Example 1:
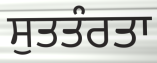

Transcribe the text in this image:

ਸੁਤਤੰਰਤਾ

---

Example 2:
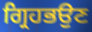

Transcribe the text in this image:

ਗ੍ਰਿਹਭਉਣ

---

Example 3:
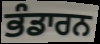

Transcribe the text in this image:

ਭੰਡਾਰਨ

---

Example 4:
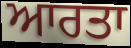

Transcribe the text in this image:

ਆਰਤਾ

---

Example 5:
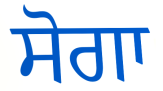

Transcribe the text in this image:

ਸੋਗਾ